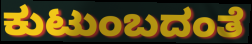
ಕುಟುಂಬದಂತೆ